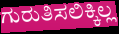
ಗುರುತಿಸಲಿಕ್ಕಿಲ್ಲ